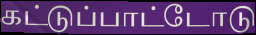
கட்டுப்பாட்டோடு